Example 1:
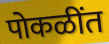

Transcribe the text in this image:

पोकळींत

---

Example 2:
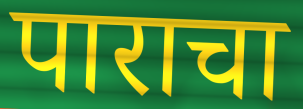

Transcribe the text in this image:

पाराचा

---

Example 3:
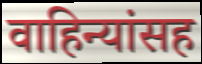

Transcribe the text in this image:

वाहिन्यांसह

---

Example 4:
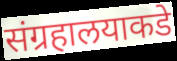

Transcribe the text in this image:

संग्रहालयाकडे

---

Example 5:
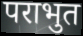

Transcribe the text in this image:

पराभुत